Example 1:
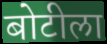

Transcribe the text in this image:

बोटीला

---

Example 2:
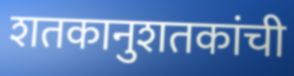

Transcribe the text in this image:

शतकानुशतकांची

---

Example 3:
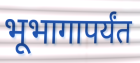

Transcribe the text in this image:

भूभागापर्यंत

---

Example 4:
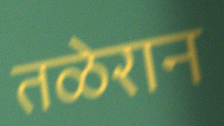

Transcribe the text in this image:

तळेरान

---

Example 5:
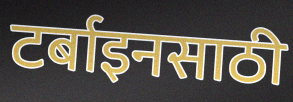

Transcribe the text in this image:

टर्बाइनसाठी